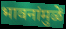
भावनांमुळें